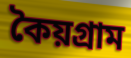
কৈয়গ্রাম